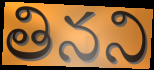
తినని